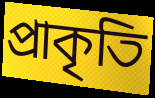
প্ৰাকৃতি